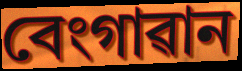
বেংগাৱান